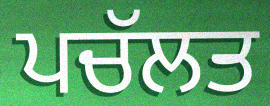
ਪਚੱਲਤ